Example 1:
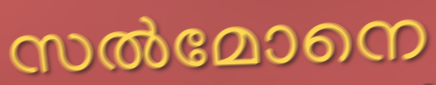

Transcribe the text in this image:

സൽമോനെ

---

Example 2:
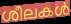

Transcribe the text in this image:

ശീലകൾ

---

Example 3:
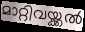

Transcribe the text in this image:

മാറ്റിവയ്ക്കൽ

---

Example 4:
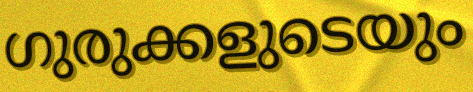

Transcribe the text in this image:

ഗുരുക്കളുടെയും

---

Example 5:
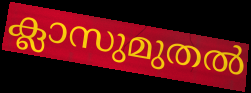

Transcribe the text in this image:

ക്ലാസുമുതൽ